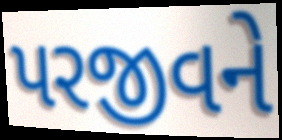
પરજીવને